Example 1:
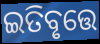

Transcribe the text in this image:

ଇତିବୃତ୍ତେ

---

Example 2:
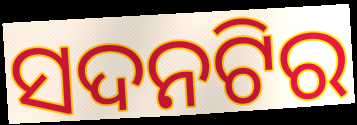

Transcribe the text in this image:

ସଦନଟିର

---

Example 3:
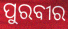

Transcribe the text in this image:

ପୁରବୀର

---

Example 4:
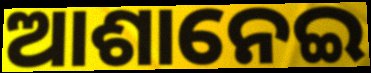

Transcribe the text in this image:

ଆଶାନେଇ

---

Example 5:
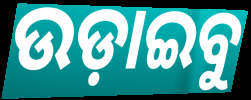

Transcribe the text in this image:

ଉଡ଼ାଇବୁ